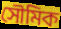
সৌমিক